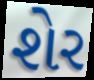
શેર